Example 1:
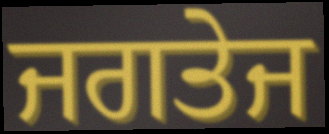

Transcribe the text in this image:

ਜਗਤੇਜ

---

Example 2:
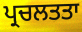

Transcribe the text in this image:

ਪ੍ਰਚਲਤਤਾ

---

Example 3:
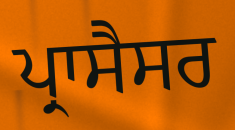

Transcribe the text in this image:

ਪ੍ਰਾਸੈਸਰ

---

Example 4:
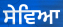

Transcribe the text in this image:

ਸੇਵਿਆ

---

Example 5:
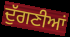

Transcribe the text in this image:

ਦੁੱਗਣੀਆਂ